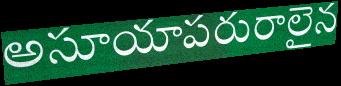
అసూయాపరురాలైన